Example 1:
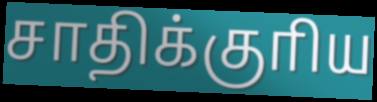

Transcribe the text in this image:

சாதிக்குரிய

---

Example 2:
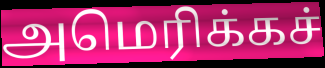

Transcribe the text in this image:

அமெரிக்கச்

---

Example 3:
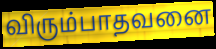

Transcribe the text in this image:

விரும்பாதவனை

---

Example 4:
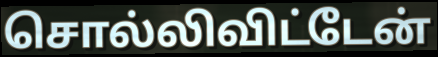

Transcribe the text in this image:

சொல்லிவிட்டேன்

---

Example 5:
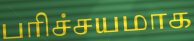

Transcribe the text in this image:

பரிச்சயமாக